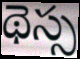
థెస్స